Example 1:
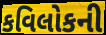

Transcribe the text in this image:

કવિલોકની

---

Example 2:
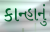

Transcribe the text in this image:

કાન્હાનું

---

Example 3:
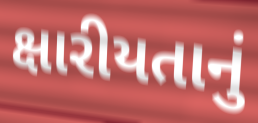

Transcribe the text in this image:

ક્ષારીયતાનું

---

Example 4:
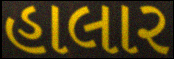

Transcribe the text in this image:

હાલાર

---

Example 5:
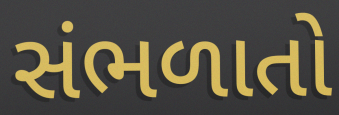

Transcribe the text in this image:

સંભળાતો